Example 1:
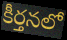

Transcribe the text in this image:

కీర్తనలో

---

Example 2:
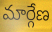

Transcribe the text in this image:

మార్గేణ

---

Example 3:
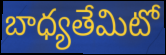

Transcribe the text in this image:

బాధ్యతేమిటో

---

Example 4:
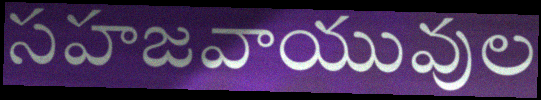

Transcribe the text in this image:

సహజవాయువుల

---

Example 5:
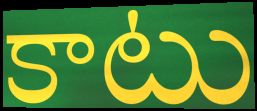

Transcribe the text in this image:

కాటు